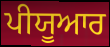
ਪੀਯੂਆਰ